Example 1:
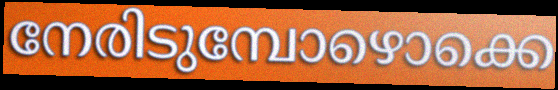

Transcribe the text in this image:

നേരിടുമ്പോഴൊക്കെ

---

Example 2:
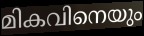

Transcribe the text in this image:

മികവിനെയും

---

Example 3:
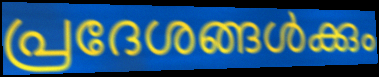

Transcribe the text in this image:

പ്രദേശങ്ങൾക്കും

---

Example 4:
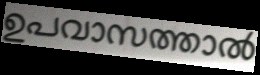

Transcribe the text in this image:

ഉപവാസത്താൽ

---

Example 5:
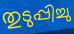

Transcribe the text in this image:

തുടുപ്പിച്ചു